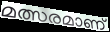
മത്സരമാണ്